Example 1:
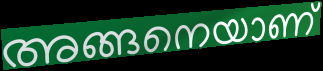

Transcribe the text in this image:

അങ്ങനെയാണ്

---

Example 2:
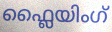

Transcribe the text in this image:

ഫ്ലൈയിംഗ്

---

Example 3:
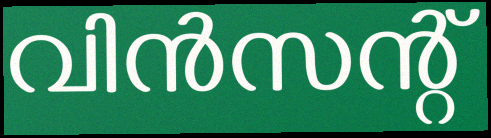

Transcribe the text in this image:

വിൻസന്റ്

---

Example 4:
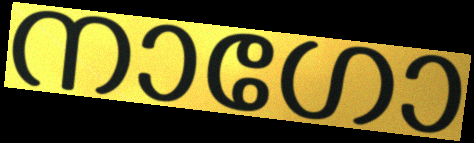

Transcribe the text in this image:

നാഗോ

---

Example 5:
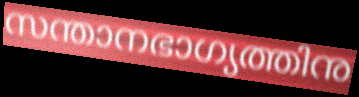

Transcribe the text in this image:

സന്താനഭാഗ്യത്തിനു